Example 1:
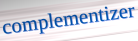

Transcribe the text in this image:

complementizer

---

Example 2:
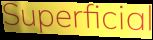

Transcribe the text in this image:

Superficial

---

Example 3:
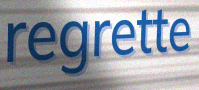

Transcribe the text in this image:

regrette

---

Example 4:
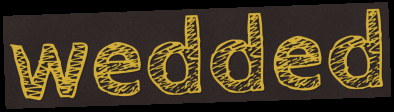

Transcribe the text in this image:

wedded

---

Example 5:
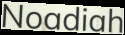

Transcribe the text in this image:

Noadiah